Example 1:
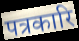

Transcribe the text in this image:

पत्रकारि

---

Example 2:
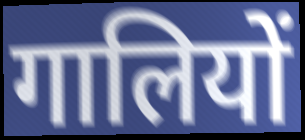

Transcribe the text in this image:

गालियों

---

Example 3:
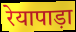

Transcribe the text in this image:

रेयापाड़ा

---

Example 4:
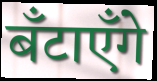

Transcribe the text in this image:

बँटाएँगे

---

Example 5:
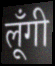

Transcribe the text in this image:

लूँगी